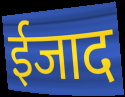
ईजाद